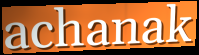
achanak